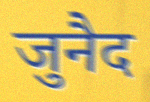
जुनैद